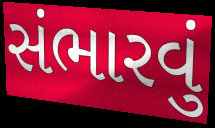
સંભારવું